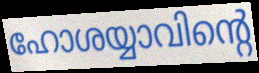
ഹോശയ്യാവിന്റെ